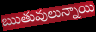
ఋతువులున్నాయి